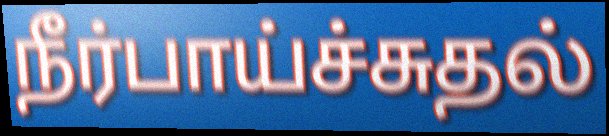
நீர்பாய்ச்சுதல்